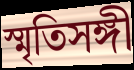
স্মৃতিসঙ্গী